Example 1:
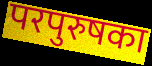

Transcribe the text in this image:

परपुरुषका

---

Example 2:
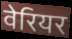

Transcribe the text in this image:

वेरियर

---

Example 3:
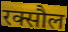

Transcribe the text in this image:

रक्सौल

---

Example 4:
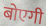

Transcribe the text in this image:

बोएगी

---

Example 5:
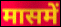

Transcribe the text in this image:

मासमें